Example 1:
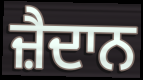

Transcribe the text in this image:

ਜ਼ੈਦਾਨ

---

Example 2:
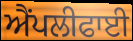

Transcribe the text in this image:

ਐਂਪਲੀਫਾਈ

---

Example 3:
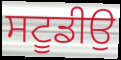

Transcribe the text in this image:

ਸਟੂਡੀਉ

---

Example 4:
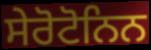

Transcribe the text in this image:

ਸੇਰੋਟੋਨਿਨ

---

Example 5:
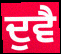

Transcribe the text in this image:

ਦੁਵੈ